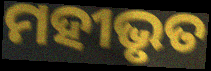
ମହୀଭୃତ